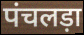
पंचलड़ा